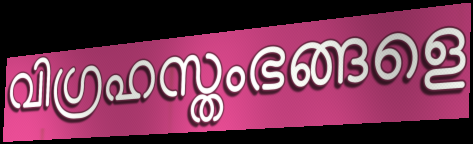
വിഗ്രഹസ്തംഭങ്ങളെ